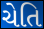
ચેતિ